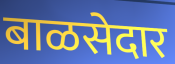
बाळसेदार